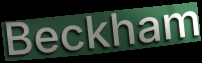
Beckham